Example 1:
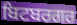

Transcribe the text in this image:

ਬਿਟਬਰਗਰ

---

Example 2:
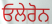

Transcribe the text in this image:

ਓਲੇਰੋਨ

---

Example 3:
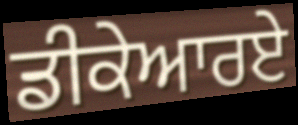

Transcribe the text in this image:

ਡੀਕੇਆਰਏ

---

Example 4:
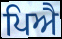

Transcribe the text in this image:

ਪਿਐ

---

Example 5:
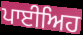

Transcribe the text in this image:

ਪਾਈਅਿਹ